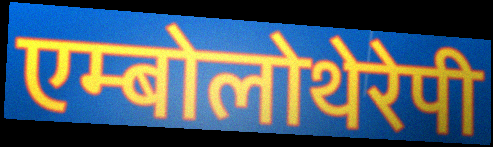
एम्बोलोथेरेपी